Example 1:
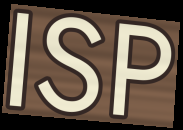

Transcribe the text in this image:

ISP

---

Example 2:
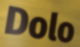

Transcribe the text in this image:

Dolo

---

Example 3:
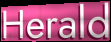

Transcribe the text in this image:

Herald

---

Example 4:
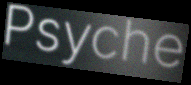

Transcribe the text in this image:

Psyche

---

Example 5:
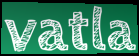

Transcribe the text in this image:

vatla